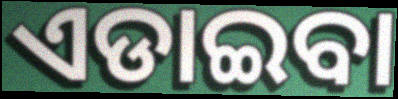
ଏଡାଇବା